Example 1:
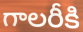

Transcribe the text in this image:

గాలరీకి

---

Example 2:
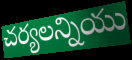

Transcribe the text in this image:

చర్యలన్నియు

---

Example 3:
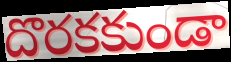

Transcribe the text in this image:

దొరకకుండా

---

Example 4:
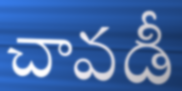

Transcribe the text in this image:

చావడీ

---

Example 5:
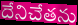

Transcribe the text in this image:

దేనిచేతను